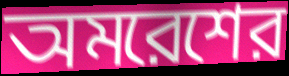
অমরেশের